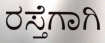
ರಸ್ತೆಗಾಗಿ